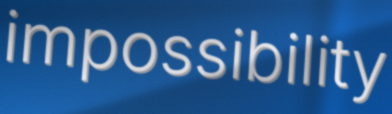
impossibility